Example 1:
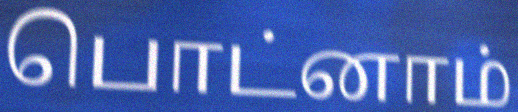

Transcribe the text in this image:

பொட்னாம்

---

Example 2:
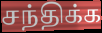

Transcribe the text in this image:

சந்திக்க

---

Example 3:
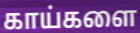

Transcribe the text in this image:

காய்களை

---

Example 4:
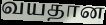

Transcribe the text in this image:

வயதான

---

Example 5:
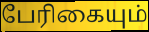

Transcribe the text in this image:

பேரிகையும்